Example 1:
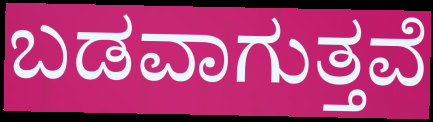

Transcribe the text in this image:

ಬಡವಾಗುತ್ತವೆ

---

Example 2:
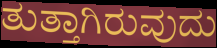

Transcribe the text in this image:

ತುತ್ತಾಗಿರುವುದು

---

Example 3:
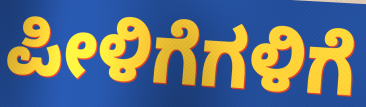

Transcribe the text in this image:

ಪೀಳಿಗೆಗಳಿಗೆ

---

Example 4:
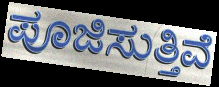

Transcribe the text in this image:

ಪೂಜಿಸುತ್ತಿವೆ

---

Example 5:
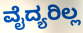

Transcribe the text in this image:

ವೈದ್ಯರಿಲ್ಲ